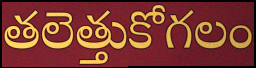
తలెత్తుకోగలం